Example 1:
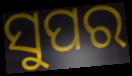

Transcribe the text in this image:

ସୁପର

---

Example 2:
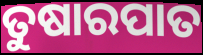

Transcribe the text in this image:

ତୁଷାରପାତ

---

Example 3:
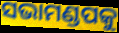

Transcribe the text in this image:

ସଭାମଣ୍ଡପକୁ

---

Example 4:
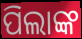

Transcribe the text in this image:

ପିଲାଙ୍କ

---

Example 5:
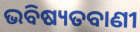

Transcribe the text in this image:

ଭବିଷ୍ୟତବାଣୀ